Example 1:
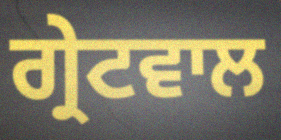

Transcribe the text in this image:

ਗ੍ਰੇਟਵਾਲ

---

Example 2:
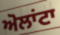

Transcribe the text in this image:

ਅੋਲਾਂਟਾ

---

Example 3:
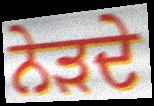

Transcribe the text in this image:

ਨੇੜਦੇ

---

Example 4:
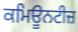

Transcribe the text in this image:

ਕਮਿਊਨਟੀਜ਼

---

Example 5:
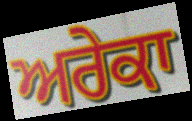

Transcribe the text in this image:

ਅਰੇਕਾ